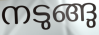
നടുങ്ങു